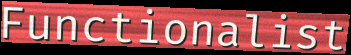
Functionalist